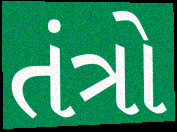
તંત્રો